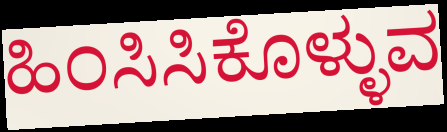
ಹಿಂಸಿಸಿಕೊಳ್ಳುವ